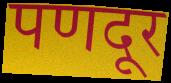
पणदूर